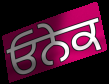
ਓਨੇਕ